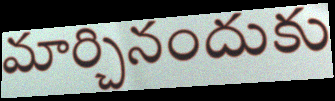
మార్చినందుకు